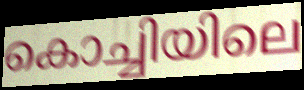
കൊച്ചിയിലെ